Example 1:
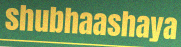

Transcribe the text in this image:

shubhaashaya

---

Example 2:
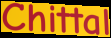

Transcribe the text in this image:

Chittal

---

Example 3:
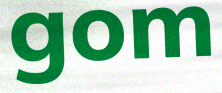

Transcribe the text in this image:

gom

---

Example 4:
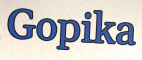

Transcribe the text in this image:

Gopika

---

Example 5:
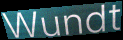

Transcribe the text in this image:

Wundt